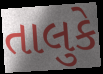
તાલુકે